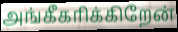
அங்கீகரிக்கிறேன்